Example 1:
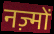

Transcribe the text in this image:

नज़्मों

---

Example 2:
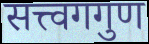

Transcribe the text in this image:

सत्त्वगगुण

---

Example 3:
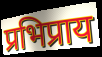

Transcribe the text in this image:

प्रभिप्राय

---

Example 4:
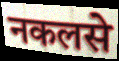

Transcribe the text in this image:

नकलसे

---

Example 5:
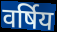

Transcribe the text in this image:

वर्षिय